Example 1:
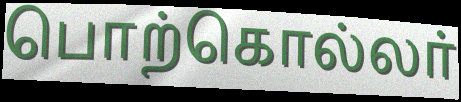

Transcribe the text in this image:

பொற்கொல்லர்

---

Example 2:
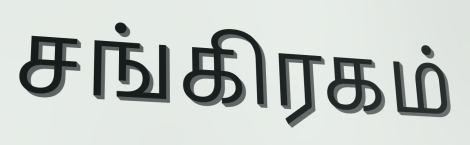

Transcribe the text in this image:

சங்கிரகம்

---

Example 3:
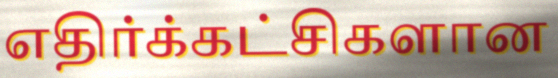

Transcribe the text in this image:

எதிர்க்கட்சிகளான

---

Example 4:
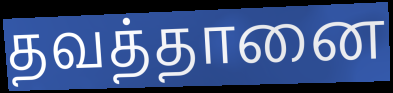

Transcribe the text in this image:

தவத்தானை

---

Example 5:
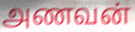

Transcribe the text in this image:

அணவன்